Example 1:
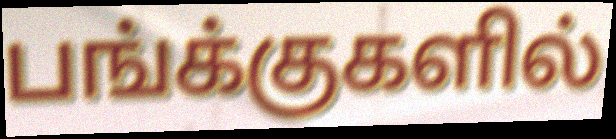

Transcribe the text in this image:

பங்க்குகளில்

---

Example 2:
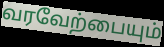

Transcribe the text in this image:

வரவேற்பையும்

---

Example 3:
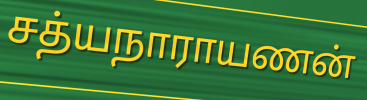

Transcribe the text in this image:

சத்யநாராயணன்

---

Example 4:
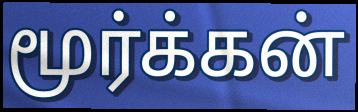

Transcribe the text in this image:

மூர்க்கன்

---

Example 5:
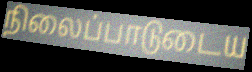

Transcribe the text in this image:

நிலைப்பாடுடைய